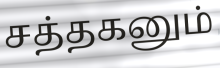
சத்தகனும்